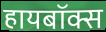
हायबॉक्स